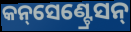
କନ୍‌ସେଣ୍ଟ୍ରେସନ୍